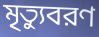
মৃত্যুবরণ